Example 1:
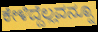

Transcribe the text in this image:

ಕೇಳಿದ್ದೆಲ್ಲವನ್ನೂ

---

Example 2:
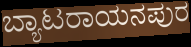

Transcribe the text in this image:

ಬ್ಯಾಟರಾಯನಪುರ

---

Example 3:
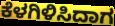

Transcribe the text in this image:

ಕೆಳಗಿಳಿಸಿದಾಗ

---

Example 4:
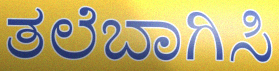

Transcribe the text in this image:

ತಲೆಬಾಗಿಸಿ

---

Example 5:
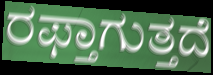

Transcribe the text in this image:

ರಫ್ತಾಗುತ್ತದೆ